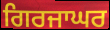
ਗਿਰਜਾਘਰ